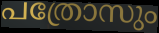
പത്രോസും